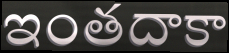
ఇంతదాకా